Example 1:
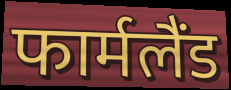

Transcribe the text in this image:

फार्मलैंड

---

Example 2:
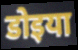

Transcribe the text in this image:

डोइया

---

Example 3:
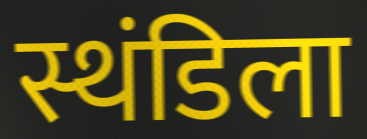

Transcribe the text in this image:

स्थंडिला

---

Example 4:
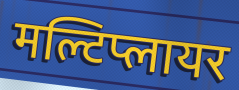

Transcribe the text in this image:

मल्टिप्लायर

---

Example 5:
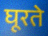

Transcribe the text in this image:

घूरते